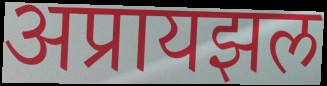
अप्रायझल